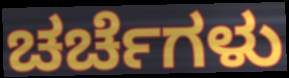
ಚರ್ಚೆಗಳು